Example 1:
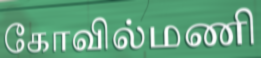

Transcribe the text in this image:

கோவில்மணி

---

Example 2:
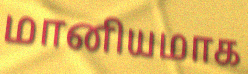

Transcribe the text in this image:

மானியமாக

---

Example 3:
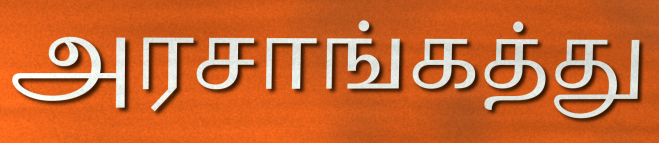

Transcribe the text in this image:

அரசாங்கத்து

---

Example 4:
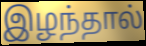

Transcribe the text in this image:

இழந்தால்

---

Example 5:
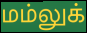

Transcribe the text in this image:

மம்லுக்